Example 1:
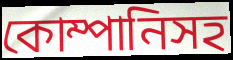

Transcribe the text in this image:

কোম্পানিসহ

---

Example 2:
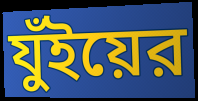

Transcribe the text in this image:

যুঁইয়ের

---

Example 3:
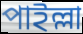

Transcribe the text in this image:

পাইল্লা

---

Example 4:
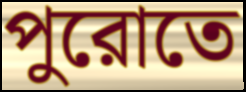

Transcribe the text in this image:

পুরোতে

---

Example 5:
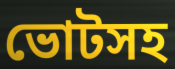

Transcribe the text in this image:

ভোটসহ